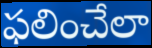
ఫలించేలా